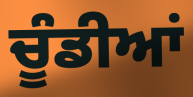
ਚੂੰਡੀਆਂ